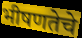
भीषणतेचे